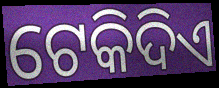
ଟେକିଦିଏ